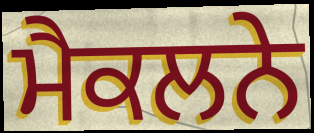
ਮੈਕਲਨੇ